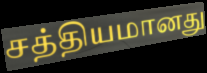
சத்தியமானது